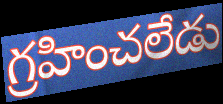
గ్రహించలేడు